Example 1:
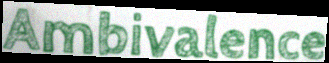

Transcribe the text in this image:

Ambivalence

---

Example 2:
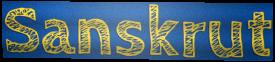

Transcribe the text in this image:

Sanskrut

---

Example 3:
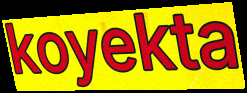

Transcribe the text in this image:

koyekta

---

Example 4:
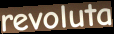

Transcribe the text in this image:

revoluta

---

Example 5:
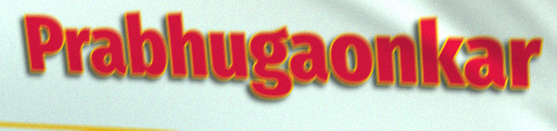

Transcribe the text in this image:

Prabhugaonkar